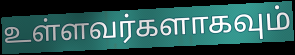
உள்ளவர்களாகவும்